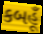
કબહૂઁ